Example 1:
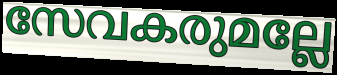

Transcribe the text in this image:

സേവകരുമല്ലേ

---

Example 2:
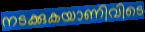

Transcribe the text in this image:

നടക്കുകയാണിവിടെ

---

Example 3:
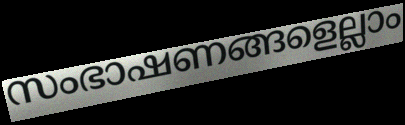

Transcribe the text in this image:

സംഭാഷണങ്ങളെല്ലാം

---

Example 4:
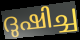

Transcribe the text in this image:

ദുഷിച്ച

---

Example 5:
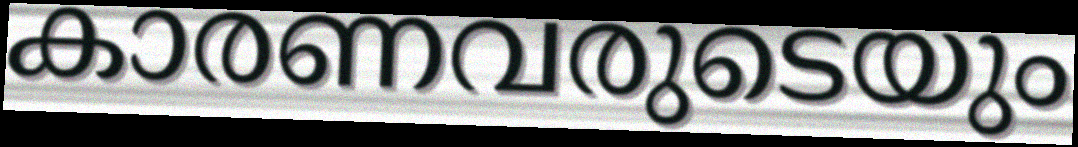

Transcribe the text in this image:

കാരണവരുടെയും